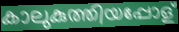
കാലുകുത്തിയപ്പോള്